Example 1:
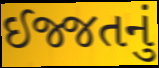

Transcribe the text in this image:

ઈજ્જતનું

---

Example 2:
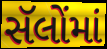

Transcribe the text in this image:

સૅલોંમાં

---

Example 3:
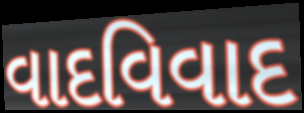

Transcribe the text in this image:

વાદવિવાદ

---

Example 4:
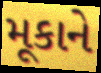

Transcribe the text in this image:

મૂકાને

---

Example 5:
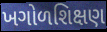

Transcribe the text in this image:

ખગોળશિક્ષણ